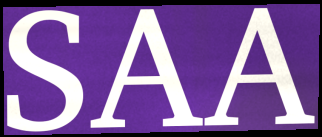
SAA